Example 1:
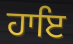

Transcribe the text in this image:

ਹਾਇ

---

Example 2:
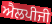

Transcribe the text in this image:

ਐਲਪੀਜੀ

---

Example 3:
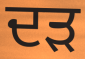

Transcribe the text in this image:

ਦੜ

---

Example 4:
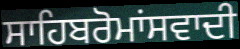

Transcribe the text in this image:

ਸਾਹਿਬਰੋਮਾਂਸਵਾਦੀ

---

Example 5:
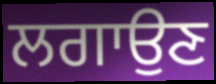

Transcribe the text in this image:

ਲਗਾਉਣ